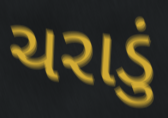
ચરાડું